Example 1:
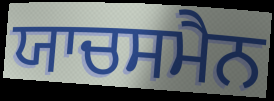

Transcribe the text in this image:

ਯਾਚਸਮੈਨ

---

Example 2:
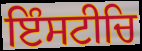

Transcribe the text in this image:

ਇੰਸਟੀਚਿ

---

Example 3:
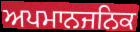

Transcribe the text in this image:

ਅਪਮਾਨਜਨਿਕ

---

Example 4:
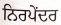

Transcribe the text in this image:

ਨਿਰਪੇਂਦਰ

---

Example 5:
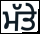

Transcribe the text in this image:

ਮੱਤੇ